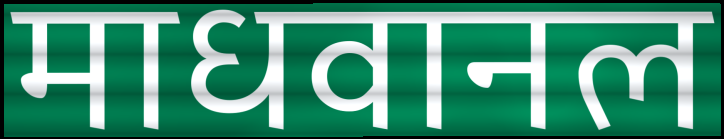
माधवानल